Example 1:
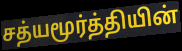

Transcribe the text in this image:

சத்யமூர்த்தியின்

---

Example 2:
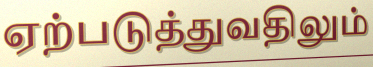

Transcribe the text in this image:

ஏற்படுத்துவதிலும்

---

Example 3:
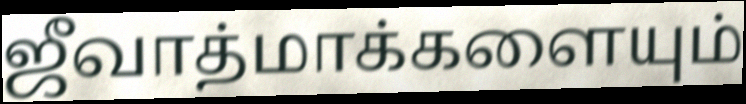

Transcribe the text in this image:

ஜீவாத்மாக்களையும்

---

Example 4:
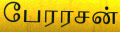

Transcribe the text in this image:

பேரரசன்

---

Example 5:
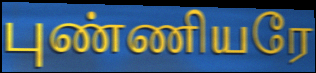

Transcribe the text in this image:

புண்ணியரே